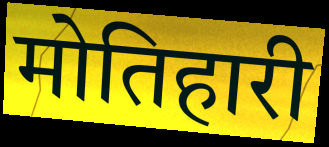
मोतिहारी